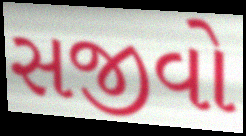
સજીવો